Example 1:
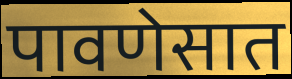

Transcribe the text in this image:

पावणेसात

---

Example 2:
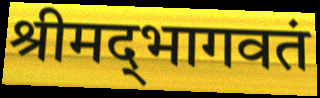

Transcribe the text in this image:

श्रीमद्‌भागवतं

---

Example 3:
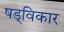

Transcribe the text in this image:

षड्‌विकार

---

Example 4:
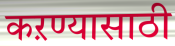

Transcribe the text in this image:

कऱण्यासाठी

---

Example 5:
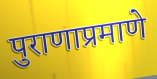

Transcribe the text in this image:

पुराणाप्रमाणे